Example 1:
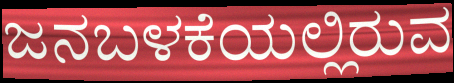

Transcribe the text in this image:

ಜನಬಳಕೆಯಲ್ಲಿರುವ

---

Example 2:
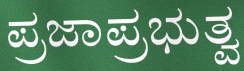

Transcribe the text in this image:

ಪ್ರಜಾಪ್ರಭುತ್ವ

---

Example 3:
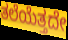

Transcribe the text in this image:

ತಲೆಯೆತ್ತದೇ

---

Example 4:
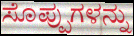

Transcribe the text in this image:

ಸೊಪ್ಪುಗಳನ್ನು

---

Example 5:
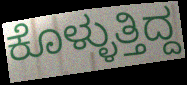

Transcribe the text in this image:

ಕೊಳ್ಳುತ್ತಿದ್ದ